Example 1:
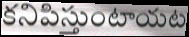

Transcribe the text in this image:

కనిపిస్తుంటాయట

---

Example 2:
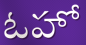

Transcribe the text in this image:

ఓహో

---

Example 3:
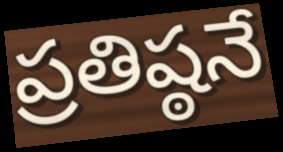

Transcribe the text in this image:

ప్రతిష్ఠనే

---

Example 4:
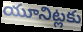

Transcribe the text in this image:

యూనిట్లకు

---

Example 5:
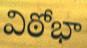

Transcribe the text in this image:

విఠోభా